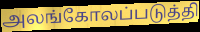
அலங்கோலப்படுத்தி